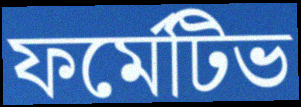
ফর্মেটিভ